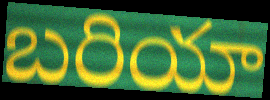
బరియా